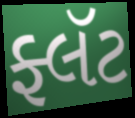
ફ્લૅટ